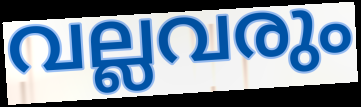
വല്ലവരും